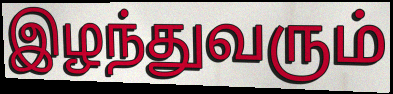
இழந்துவரும்